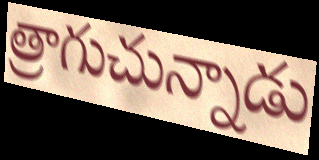
త్రాగుచున్నాడు